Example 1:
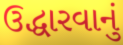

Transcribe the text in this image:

ઉદ્ધારવાનું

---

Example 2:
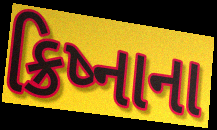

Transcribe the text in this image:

ક્રિષ્નાના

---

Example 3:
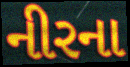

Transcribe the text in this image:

નીરના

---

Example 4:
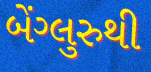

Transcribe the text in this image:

બેંગ્લુરુથી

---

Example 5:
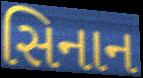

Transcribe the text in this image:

સિનાન